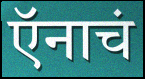
ऍनाचं